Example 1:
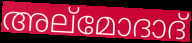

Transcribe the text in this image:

അല്മോദാദ്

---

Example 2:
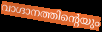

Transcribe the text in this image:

വാഗ്ദാനത്തിന്റെയും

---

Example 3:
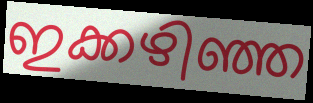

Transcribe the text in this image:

ഇക്കഴിഞ്ഞ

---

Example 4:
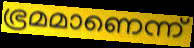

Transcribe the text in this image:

ഭ്രമമാണെന്ന്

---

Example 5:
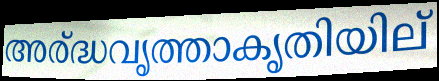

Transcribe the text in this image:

അര്ദ്ധവൃത്താകൃതിയില്